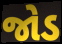
જોડ